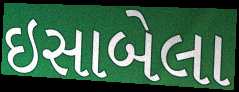
ઇસાબેલા